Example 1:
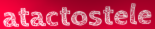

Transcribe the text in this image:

atactostele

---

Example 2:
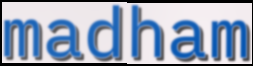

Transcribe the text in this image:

madham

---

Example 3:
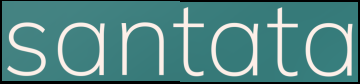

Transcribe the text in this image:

santata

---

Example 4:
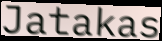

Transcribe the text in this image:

Jatakas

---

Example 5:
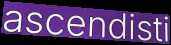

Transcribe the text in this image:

ascendisti